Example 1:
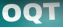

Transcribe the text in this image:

OQT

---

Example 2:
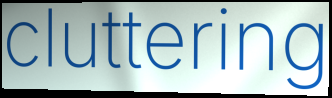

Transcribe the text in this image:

cluttering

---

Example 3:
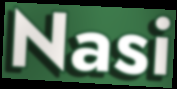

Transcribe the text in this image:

Nasi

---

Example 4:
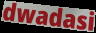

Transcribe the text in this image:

dwadasi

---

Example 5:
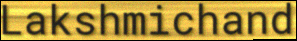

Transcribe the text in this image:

Lakshmichand